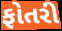
ફોતરી